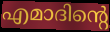
എമാദിന്റെ